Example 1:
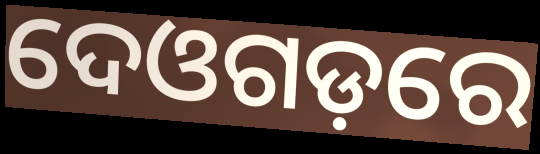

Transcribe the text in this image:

ଦେଓଗଡ଼ରେ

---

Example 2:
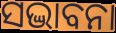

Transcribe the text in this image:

ସଦ୍ଭାବନା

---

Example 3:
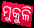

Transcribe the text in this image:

ମୁକୁଳି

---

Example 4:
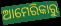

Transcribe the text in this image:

ଆମେରିକାରୁ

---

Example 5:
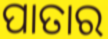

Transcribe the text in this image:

ପାତାର